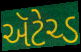
ઍટેચ્ડ